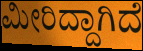
ಮೀರಿದ್ದಾಗಿದೆ